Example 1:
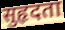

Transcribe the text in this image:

सुहृदता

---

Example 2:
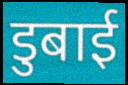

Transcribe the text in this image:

डुबाई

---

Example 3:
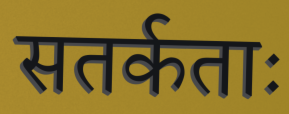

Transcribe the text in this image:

सतर्कताः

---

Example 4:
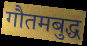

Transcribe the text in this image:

गौतमबुद्ध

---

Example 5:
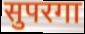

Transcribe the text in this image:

सुपरगा